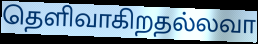
தெளிவாகிறதல்லவா